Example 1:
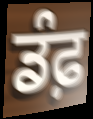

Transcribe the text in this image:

ਡੰਫ਼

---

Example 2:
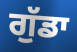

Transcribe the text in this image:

ਗੁੱਡਾ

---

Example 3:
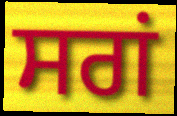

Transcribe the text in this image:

ਸਗਂ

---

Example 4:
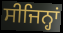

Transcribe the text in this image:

ਸੀਜਿਨ੍ਹਾਂ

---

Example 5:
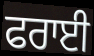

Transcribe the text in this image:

ਫਰਾਈ